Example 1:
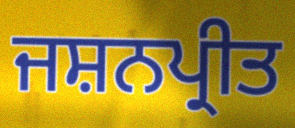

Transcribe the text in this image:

ਜਸ਼ਨਪ੍ਰੀਤ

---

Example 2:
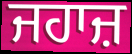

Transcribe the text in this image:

ਜਹਾਜ਼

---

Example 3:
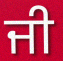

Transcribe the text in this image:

ਜੀ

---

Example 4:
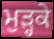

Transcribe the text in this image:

ਮੁੜ੍ਹਕੇ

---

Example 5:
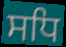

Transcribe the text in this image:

ਸਧਿ